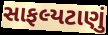
સાફલ્યટાણું